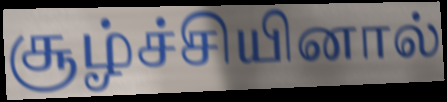
சூழ்ச்சியினால்